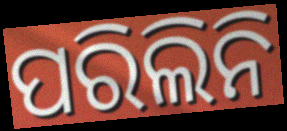
ପରିଲିନି